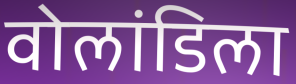
वोलांडिला